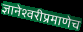
ज्ञानेश्वरीप्रमाणेच